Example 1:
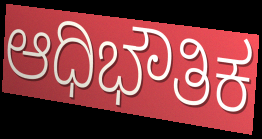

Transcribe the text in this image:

ಆಧಿಭೌತಿಕ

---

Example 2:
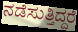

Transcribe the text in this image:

ನಡೆಸುತ್ತಿದ್ದರೆ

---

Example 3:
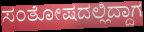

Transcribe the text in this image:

ಸಂತೋಷದಲ್ಲಿದ್ದಾಗ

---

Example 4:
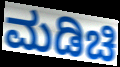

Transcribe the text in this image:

ಮಡಿಚಿ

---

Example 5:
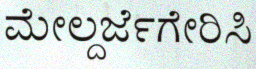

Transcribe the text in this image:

ಮೇಲ್ದರ್ಜೆಗೇರಿಸಿ